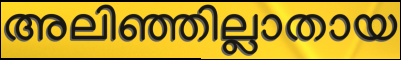
അലിഞ്ഞില്ലാതായ